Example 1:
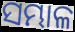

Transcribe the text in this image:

ସମ୍ଭାଳ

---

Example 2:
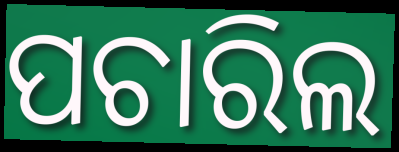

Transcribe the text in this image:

ପଚାରିଲ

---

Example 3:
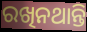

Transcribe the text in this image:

ରଖିନଥାନ୍ତି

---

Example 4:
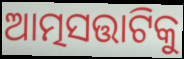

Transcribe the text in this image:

ଆତ୍ମସତ୍ତାଟିକୁ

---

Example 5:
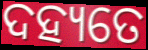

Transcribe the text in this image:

ଦହ୍ୟତେ